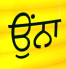
ਉੰਨਾ